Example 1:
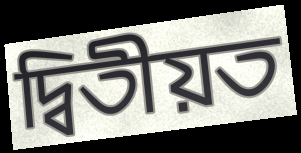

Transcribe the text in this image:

দ্বিতীয়ত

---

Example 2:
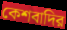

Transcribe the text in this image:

কেশবাদির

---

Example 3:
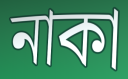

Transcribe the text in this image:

নাকা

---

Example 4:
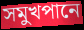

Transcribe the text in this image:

সমুখপানে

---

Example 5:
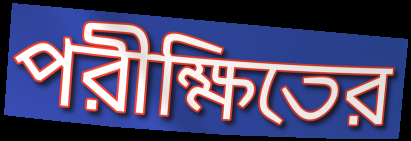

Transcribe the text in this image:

পরীক্ষিতের